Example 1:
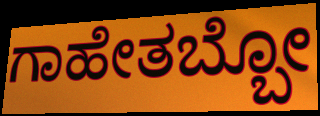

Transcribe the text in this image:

ಗಾಹೇತಬ್ಬೋ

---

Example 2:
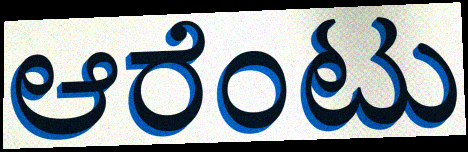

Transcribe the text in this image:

ಆರೆಂಟು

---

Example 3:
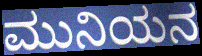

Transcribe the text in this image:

ಮುನಿಯನ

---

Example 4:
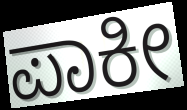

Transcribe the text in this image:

ಪಾಕೀ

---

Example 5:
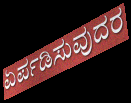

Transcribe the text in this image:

ಏರ್ಪಡಿಸುವುದರ